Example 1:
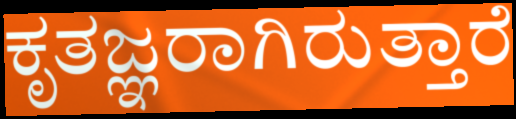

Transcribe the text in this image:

ಕೃತಜ್ಞರಾಗಿರುತ್ತಾರೆ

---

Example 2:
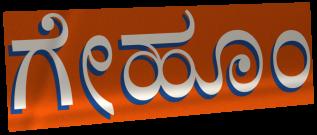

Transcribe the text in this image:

ಗೇಹೂಂ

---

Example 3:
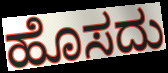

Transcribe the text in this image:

ಹೊಸದು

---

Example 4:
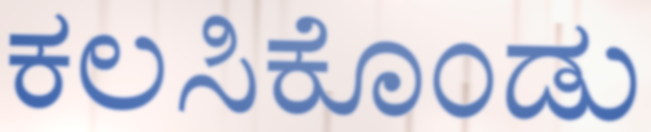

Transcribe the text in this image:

ಕಲಸಿಕೊಂಡು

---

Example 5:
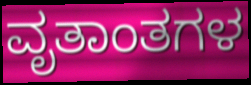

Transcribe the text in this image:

ವೃತಾಂತಗಳ